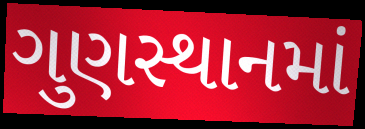
ગુણસ્થાનમાં